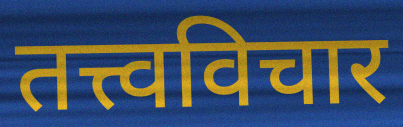
तत्त्वविचार